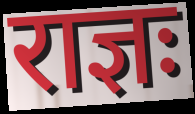
राज्ञः